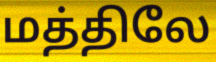
மத்திலே